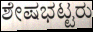
ಶೇಷಭಟ್ಟರು